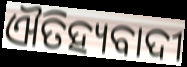
ଐତିହ୍ୟବାଦୀ